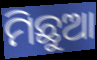
ମିଛୁଆ